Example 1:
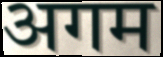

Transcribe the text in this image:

अगम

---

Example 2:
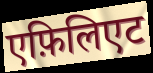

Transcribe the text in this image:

एफ़िलिएट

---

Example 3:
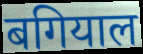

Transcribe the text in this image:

बगियाल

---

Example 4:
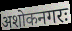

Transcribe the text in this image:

अशोकनगरः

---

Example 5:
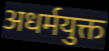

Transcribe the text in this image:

अधर्मयुक्त